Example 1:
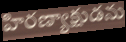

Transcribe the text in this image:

హిరణ్యాక్షుడను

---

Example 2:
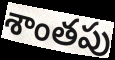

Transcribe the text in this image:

శాంతపు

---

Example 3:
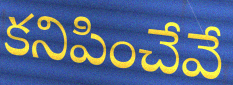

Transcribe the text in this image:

కనిపించేవే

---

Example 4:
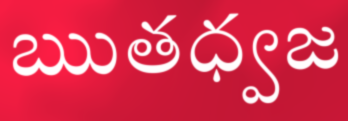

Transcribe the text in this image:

ఋతధ్వజ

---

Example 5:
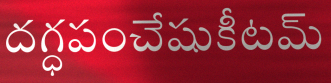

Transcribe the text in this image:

దగ్ధపంచేషుకీటమ్